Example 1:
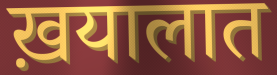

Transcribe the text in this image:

ख़यालात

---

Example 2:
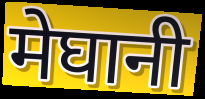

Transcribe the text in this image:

मेघानी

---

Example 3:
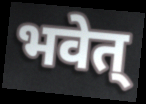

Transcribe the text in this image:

भवेत्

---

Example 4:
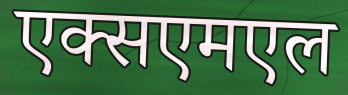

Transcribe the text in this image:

एक्सएमएल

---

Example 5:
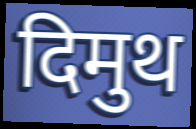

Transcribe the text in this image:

दिमुथ